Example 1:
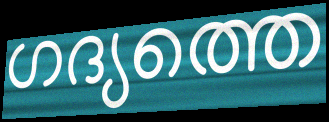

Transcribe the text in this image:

ഗദ്യത്തെ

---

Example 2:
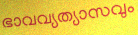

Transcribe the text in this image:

ഭാവവ്യത്യാസവും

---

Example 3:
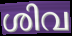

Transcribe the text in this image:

ശിവ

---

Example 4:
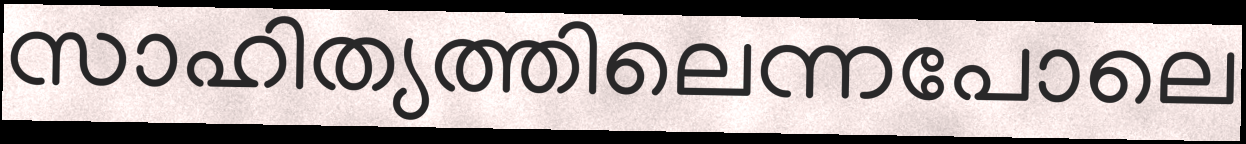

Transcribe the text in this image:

സാഹിത്യത്തിലെന്നപോലെ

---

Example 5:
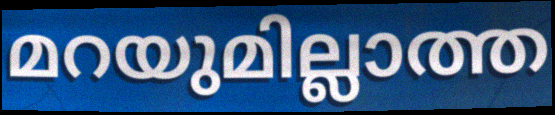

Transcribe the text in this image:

മറയുമില്ലാത്ത